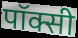
पॉक्सी